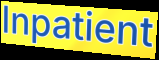
Inpatient